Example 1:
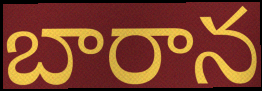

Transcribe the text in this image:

బారాన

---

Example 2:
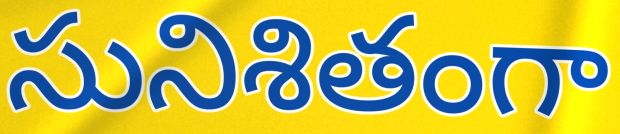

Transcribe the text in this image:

సునిశితంగా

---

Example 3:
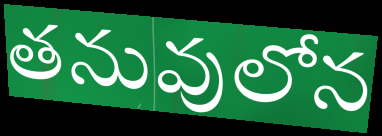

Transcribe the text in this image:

తనువులోన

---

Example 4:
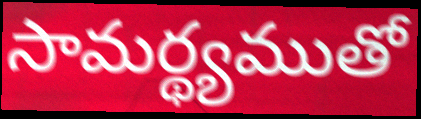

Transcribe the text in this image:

సామర్థ్యముతో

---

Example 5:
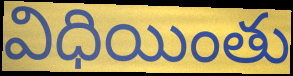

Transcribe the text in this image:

విధియింతు